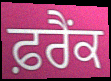
ਫ਼ਰੈਂਕ